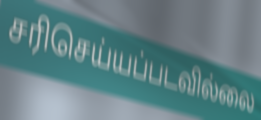
சரிசெய்யப்படவில்லை